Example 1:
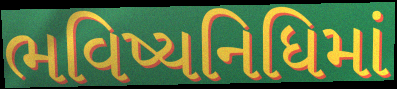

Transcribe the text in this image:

ભવિષ્યનિધિમાં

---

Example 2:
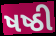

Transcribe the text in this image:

ષષ્ઠી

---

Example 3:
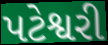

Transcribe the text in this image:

પટેશ્વરી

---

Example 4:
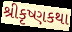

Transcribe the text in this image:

શ્રીકૃષ્ણકથા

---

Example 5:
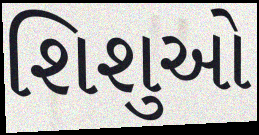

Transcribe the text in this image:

શિશુઓ